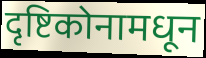
दृष्टिकोनामधून